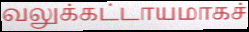
வலுக்கட்டாயமாகச்